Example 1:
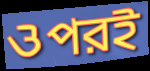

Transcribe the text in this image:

ওপরই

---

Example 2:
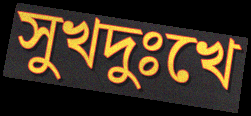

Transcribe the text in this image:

সুখদুঃখে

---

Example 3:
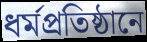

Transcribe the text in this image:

ধর্মপ্রতিষ্ঠানে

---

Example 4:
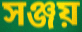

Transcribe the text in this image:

সঞ্জয়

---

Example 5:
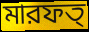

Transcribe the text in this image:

মারফত্